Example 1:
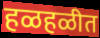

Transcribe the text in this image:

हळहळीत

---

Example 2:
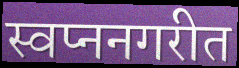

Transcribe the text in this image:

स्वप्ननगरीत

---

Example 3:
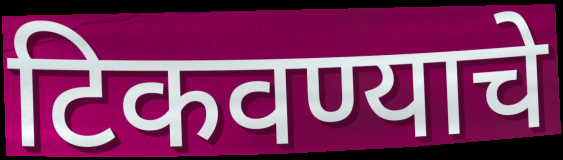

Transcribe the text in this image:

टिकवण्याचे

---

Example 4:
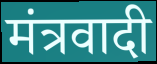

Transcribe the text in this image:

मंत्रवादी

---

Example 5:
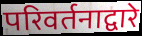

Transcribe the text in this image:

परिवर्तनाद्वारे